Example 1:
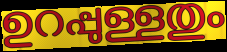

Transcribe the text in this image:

ഉറപ്പുള്ളതും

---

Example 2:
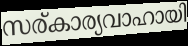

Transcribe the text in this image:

സര്കാര്യവാഹായി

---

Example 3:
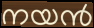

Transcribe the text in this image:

നയൻ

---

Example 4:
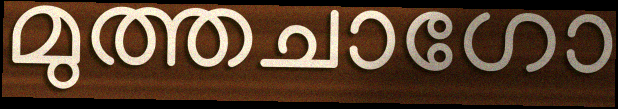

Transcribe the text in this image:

മുത്തചാഗോ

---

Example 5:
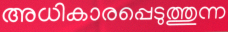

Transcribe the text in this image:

അധികാരപ്പെടുത്തുന്ന